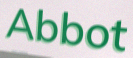
Abbot